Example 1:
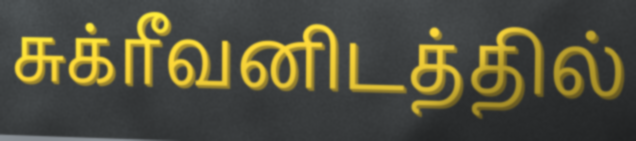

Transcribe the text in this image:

சுக்ரீவனிடத்தில்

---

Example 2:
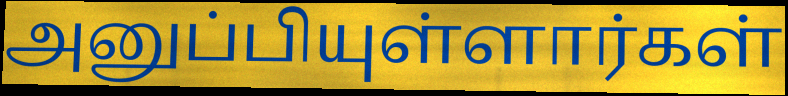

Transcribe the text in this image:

அனுப்பியுள்ளார்கள்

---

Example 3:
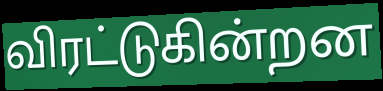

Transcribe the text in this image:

விரட்டுகின்றன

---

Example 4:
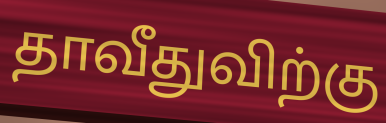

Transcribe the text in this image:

தாவீதுவிற்கு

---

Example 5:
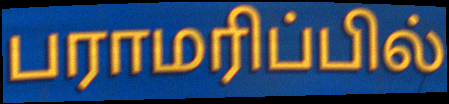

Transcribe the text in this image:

பராமரிப்பில்